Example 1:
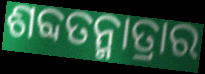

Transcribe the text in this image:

ଶବ୍ଦତନ୍ମାତ୍ରାର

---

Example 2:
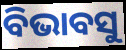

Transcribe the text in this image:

ବିଭାବସୁ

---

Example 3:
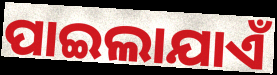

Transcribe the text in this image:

ପାଇଲାଯାଏଁ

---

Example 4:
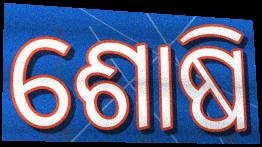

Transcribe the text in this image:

ଶୋଷି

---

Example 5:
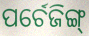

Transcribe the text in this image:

ପର୍ଚେଜିଙ୍ଗ୍